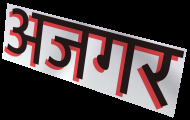
अजगर